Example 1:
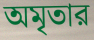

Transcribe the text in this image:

অমৃতার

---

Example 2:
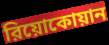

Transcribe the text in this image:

রিয়োকোয়ান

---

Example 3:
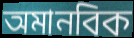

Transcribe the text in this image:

অমানবিক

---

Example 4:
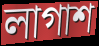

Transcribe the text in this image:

লাগাশ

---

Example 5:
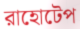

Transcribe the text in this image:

রাহোটেপ